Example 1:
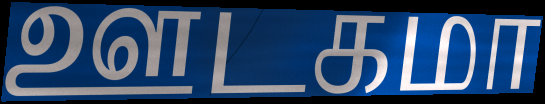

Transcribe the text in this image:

ஊடகமா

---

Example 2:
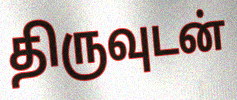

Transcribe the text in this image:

திருவுடன்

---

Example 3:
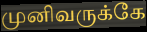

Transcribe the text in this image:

முனிவருக்கே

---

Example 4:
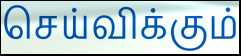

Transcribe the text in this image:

செய்விக்கும்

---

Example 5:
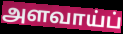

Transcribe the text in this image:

அளவாய்ப்